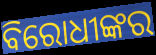
ବିରୋଧୀଙ୍କର